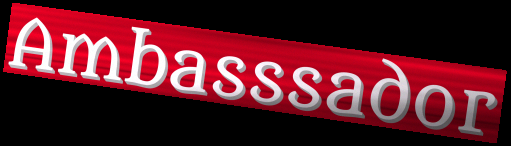
Ambasssador